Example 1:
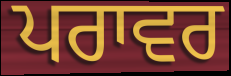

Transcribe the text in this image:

ਪਰਾਵਰ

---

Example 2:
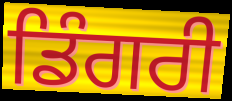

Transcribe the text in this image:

ਡਿੰਗਰੀ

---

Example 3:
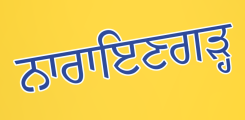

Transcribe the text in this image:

ਨਾਰਾਇਣਗੜ੍ਹ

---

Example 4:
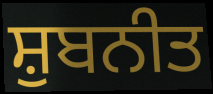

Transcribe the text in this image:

ਸ਼ੁਬਨੀਤ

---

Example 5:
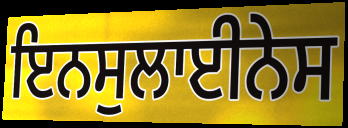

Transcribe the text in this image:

ਇਨਸੁਲਾਈਨੇਸ